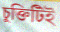
চুক্তিটিই